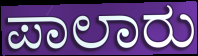
ಪಾಲಾರು